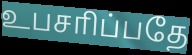
உபசரிப்பதே